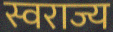
स्वराज्य